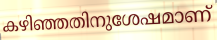
കഴിഞ്ഞതിനുശേഷമാണ്